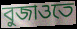
বুজাওতে